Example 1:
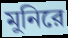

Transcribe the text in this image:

মুনিরে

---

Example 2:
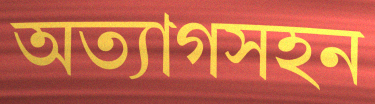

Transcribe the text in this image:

অত্যাগসহন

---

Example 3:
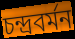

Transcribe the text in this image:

চন্দ্রবর্মন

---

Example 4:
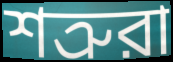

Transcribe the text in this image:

শত্রুরা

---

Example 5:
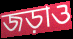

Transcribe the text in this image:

জড়াও